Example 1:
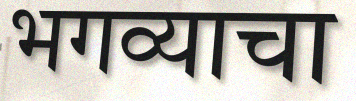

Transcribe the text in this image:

भगव्याचा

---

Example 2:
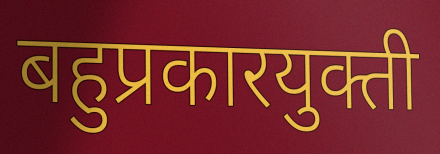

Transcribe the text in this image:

बहुप्रकारयुक्ती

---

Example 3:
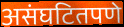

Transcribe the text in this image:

असंघटितपणे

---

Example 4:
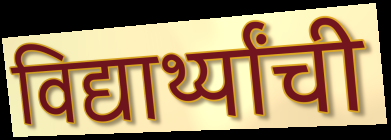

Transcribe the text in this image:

विद्यार्थ्यांची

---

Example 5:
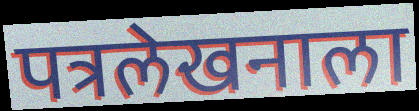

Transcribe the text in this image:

पत्रलेखनाला